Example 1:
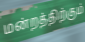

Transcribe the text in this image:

மன்றத்திற்கும்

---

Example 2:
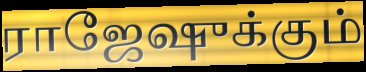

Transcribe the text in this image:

ராஜேஷுக்கும்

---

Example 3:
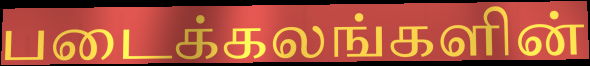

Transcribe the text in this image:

படைக்கலங்களின்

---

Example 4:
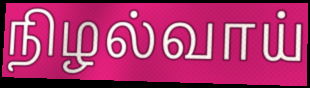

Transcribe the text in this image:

நிழல்வாய்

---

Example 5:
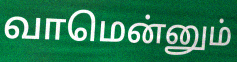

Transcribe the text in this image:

வாமென்னும்